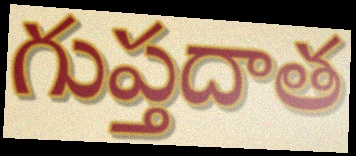
గుప్తదాత